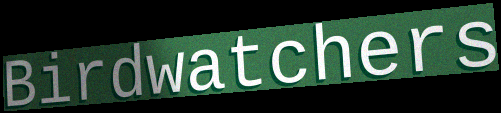
Birdwatchers